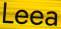
Leea